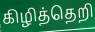
கிழித்தெறி